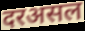
दरअसल